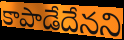
కాపాడేదేనని